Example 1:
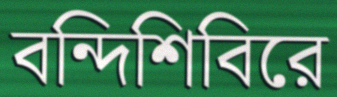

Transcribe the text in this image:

বন্দিশিবিরে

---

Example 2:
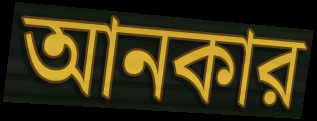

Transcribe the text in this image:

আনকার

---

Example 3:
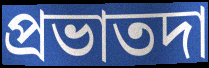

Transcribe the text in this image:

প্রভাতদা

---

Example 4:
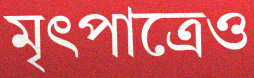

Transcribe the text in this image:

মৃৎপাত্রেও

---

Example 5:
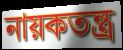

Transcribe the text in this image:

নায়কতন্ত্র